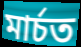
মাৰ্চত